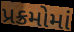
પ્રક્રમોમાં